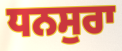
ਧਨਸੁਰਾ